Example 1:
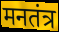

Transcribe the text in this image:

मनतंत्र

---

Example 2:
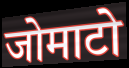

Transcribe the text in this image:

जोमाटो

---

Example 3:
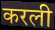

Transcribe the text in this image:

करली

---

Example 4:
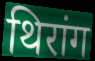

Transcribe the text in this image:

थिरांग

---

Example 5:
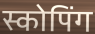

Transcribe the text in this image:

स्कोपिंग